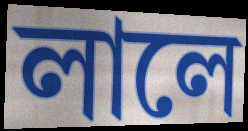
লালে